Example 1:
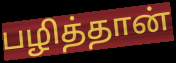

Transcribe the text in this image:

பழித்தான்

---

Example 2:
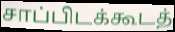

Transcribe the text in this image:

சாப்பிடக்கூடத்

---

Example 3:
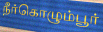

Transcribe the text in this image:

நீர்கொழும்பூர்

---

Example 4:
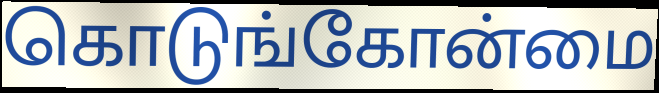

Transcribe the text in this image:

கொடுங்கோன்மை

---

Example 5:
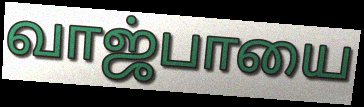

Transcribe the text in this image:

வாஜ்பாயை